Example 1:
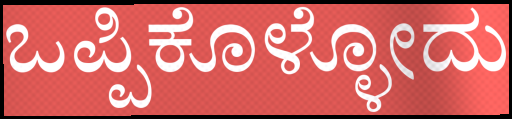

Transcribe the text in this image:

ಒಪ್ಪಿಕೊಳ್ಳೋದು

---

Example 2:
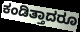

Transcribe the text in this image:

ಕಂಡಿತ್ತಾದರೂ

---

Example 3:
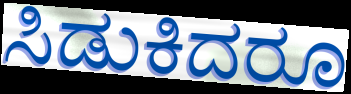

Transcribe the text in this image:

ಸಿಡುಕಿದರೂ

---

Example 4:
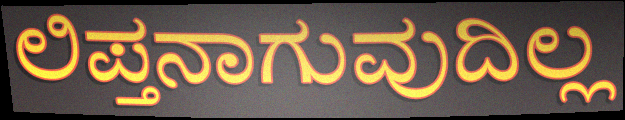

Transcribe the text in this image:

ಲಿಪ್ತನಾಗುವುದಿಲ್ಲ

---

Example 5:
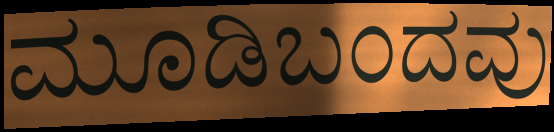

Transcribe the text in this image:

ಮೂಡಿಬಂದವು